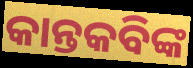
କାନ୍ତକବିଙ୍କ